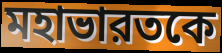
মহাভারতকে